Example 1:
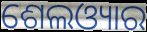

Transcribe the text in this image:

ଶେଲଓ୍ୟାର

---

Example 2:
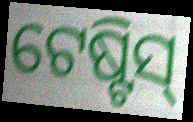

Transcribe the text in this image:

ଟେଷ୍ଟିସ୍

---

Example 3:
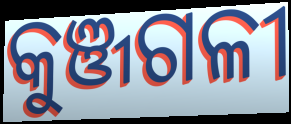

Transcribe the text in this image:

କୁଞ୍ଜଗଳୀ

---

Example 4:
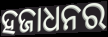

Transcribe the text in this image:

ହଜାଧନର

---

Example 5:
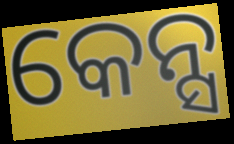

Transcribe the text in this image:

କେନ୍ସ